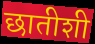
छातीशी